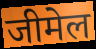
जीमेल